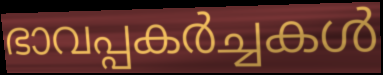
ഭാവപ്പകർച്ചകൾ